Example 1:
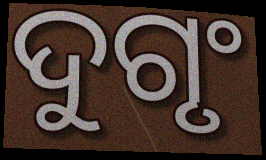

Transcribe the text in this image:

ଦୁଗୃଂ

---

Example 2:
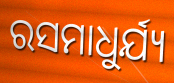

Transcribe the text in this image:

ରସମାଧୁର୍ଯ୍ୟ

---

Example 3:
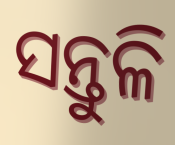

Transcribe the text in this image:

ସନ୍ତୁଳି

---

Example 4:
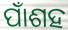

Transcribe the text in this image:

ପାଁଶହ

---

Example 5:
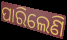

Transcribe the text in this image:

ପାରିଲେଣି